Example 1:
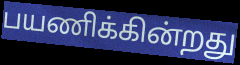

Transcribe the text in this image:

பயணிக்கின்றது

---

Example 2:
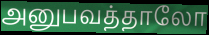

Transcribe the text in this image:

அனுபவத்தாலோ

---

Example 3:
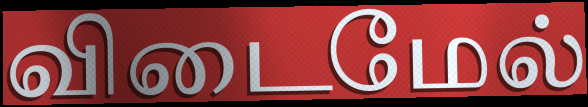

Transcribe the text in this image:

விடைமேல்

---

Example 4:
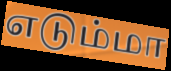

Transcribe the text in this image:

எடும்மா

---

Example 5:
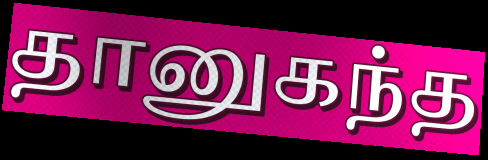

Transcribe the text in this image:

தானுகந்த